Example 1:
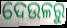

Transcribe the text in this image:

ଦେଉଳରୁ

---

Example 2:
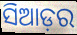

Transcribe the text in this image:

ସିଆଡ଼ର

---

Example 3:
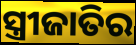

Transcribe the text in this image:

ସ୍ତ୍ରୀଜାତିର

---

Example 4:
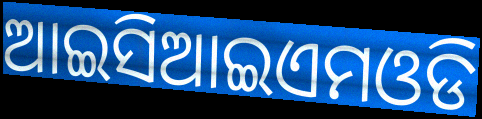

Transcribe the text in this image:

ଆଇସିଆଇଏମଓଡି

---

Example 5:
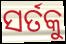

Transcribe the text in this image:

ସର୍ତକୁ